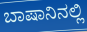
ಬಾಷಾನಿನಲ್ಲಿ